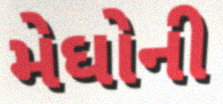
મેઘોની